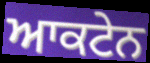
ਆਕਟੇਨ